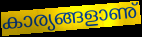
കാര്യങ്ങളാണു്